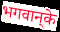
भगवान्‌के